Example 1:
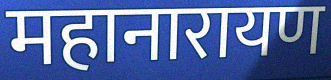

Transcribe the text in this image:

महानारायण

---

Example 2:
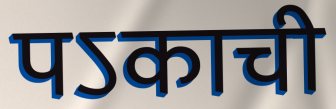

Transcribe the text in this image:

पऽकाची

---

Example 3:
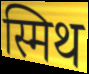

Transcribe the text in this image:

स्मिथ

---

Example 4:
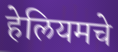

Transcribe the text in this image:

हेलियमचे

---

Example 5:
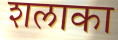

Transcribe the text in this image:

शलाका